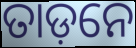
ତାଡ଼ନେ